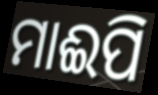
ମାଈପି